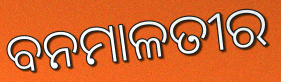
ବନମାଳତୀର